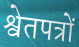
श्वेतपत्रों